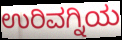
ಉರಿವಗ್ನಿಯ